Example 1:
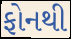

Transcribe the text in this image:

ફોનથી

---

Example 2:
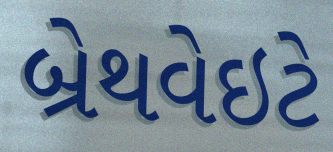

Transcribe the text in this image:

બ્રેથવેઇટે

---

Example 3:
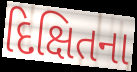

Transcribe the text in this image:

દિક્ષિતના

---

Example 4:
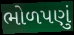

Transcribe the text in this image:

ભોળપણું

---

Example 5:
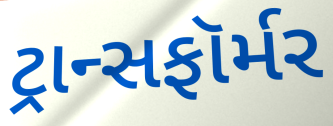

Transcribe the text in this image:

ટ્રાન્સફૉર્મર